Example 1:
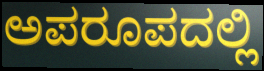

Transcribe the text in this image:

ಅಪರೂಪದಲ್ಲಿ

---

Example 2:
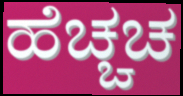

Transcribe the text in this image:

ಹೆಚ್ಚಚ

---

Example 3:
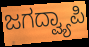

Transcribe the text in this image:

ಜಗದ್ವ್ಯಾಪಿ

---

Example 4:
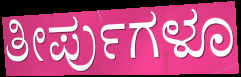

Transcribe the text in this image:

ತೀರ್ಪುಗಳೂ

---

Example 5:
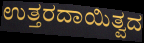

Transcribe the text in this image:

ಉತ್ತರದಾಯಿತ್ವದ